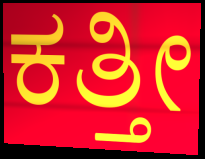
ಕತ್ತೀ